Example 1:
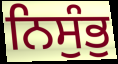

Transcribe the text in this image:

ਨਿਸੁੰਭੁ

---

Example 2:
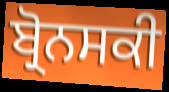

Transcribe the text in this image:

ਬ੍ਰੋਨਸਕੀ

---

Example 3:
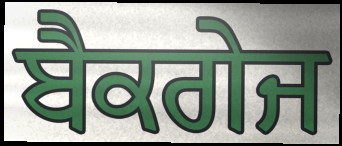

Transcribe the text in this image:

ਬੈਕਗੇਜ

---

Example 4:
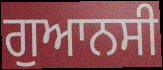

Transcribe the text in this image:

ਗੁਆਨਸੀ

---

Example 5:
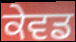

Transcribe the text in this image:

ਕੇਵਡ